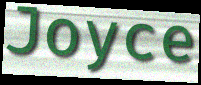
Joyce